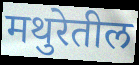
मथुरेतील